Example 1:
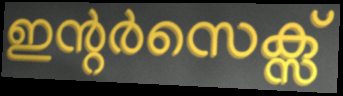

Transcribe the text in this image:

ഇന്റർസെക്സ്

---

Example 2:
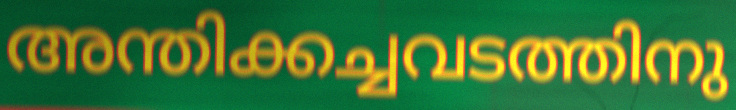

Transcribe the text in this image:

അന്തിക്കച്ചവടത്തിനു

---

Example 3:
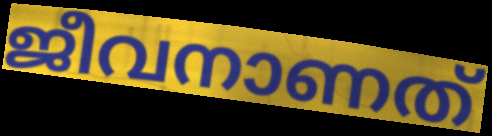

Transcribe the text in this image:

ജീവനാണത്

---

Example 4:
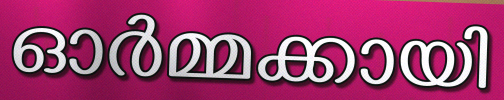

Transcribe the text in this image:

ഓർമ്മക്കായി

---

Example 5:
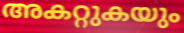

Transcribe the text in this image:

അകറ്റുകയും